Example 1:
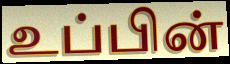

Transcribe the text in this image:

உப்பின்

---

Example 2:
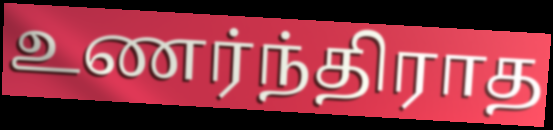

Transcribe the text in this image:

உணர்ந்திராத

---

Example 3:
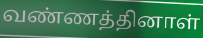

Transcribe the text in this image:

வண்ணத்தினாள்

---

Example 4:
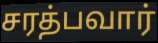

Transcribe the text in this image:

சரத்பவார்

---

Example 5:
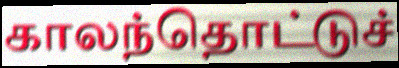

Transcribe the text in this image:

காலந்தொட்டுச்